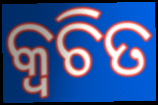
କ୍ବଚିତ